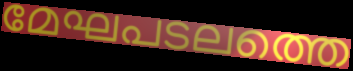
മേഘപടലത്തെ